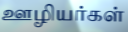
ஊழியர்கள்